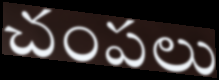
చంపలు